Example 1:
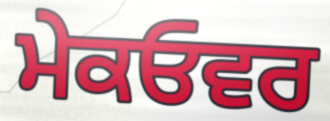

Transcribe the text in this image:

ਮੇਕਓਵਰ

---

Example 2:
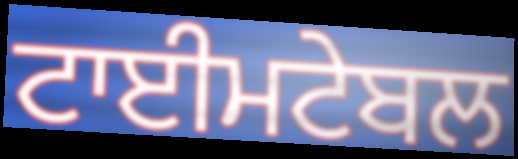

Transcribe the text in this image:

ਟਾਈਮਟੇਬਲ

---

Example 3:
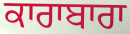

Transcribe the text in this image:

ਕਾਰਾਬਾਰਾ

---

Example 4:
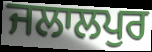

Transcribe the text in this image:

ਜਲਾਲਪੁਰ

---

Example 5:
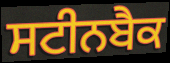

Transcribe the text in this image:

ਸਟੀਨਬੈਕ